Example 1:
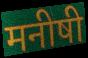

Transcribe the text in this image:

मनीषी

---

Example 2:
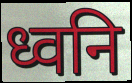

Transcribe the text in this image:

ध्वनि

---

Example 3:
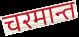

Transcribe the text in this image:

चरमान्त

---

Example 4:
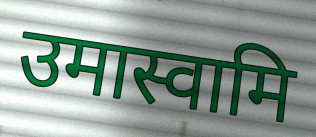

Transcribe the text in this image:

उमास्वामि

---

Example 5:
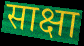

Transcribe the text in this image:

साक्षा